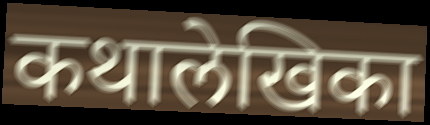
कथालेखिका